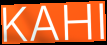
KAHI